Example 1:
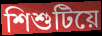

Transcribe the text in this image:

শিশুটিয়ে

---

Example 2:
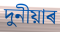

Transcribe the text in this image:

দুনীয়াৰ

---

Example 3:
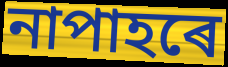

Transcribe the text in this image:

নাপাহৰে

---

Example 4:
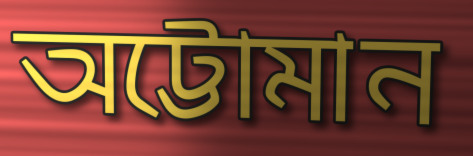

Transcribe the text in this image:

অট্টোমান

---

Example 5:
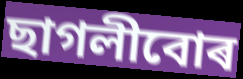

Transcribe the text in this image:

ছাগলীবোৰ